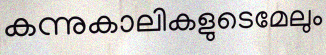
കന്നുകാലികളുടെമേലും